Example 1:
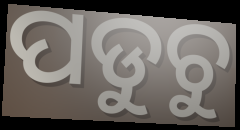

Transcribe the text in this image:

ପଡୁଚୁ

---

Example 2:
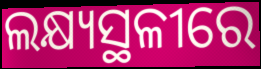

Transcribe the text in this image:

ଲକ୍ଷ୍ୟସ୍ଥଳୀରେ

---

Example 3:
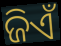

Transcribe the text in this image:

ଜିଏଁ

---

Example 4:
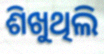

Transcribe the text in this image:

ଶିଖୁଥିଲି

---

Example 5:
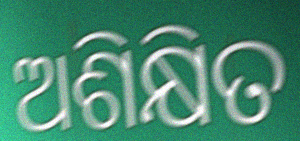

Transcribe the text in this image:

ଅଶିକ୍ଷିତ